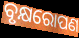
ବୃକ୍ଷରୋପଣ